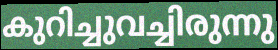
കുറിച്ചുവച്ചിരുന്നു